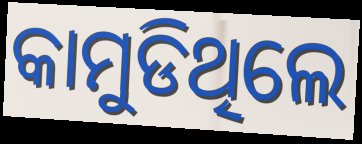
କାମୁଡିଥିଲେ